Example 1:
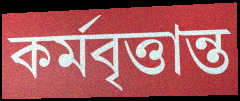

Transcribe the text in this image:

কর্মবৃত্তান্ত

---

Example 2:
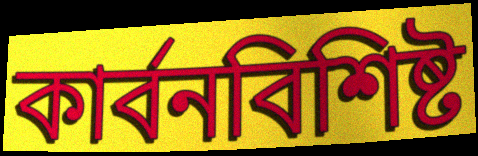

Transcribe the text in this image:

কার্বনবিশিষ্ট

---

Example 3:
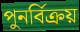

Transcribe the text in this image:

পুনর্বিক্রয়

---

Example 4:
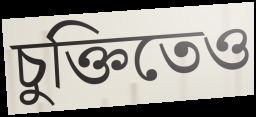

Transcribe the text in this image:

চুক্তিতেও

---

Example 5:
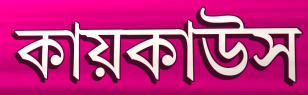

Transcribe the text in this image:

কায়কাউস